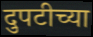
दुपटीच्या